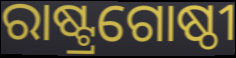
ରାଷ୍ଟ୍ରଗୋଷ୍ଠୀ